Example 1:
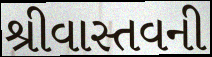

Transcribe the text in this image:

શ્રીવાસ્તવની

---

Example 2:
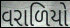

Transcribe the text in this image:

વરાળિયો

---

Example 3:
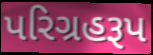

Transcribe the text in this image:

પરિગ્રહરૂપ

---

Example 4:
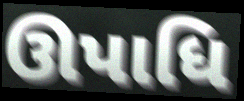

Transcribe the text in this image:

ઊપાધિ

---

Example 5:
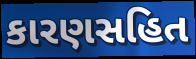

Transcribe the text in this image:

કારણસહિત